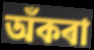
অঁকৰা